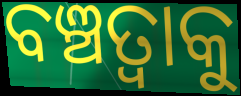
ବଞ୍ଚତ୍ବାକୁ